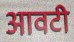
आवटी